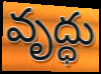
వృద్ధు